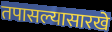
तपासल्यासारखे